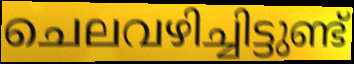
ചെലവഴിച്ചിട്ടുണ്ട്